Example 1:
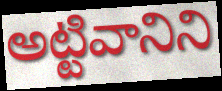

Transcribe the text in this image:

అట్టివానిని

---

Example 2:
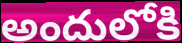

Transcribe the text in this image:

అందులోకి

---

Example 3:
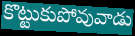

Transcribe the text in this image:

కొట్టుకుపోవువాడు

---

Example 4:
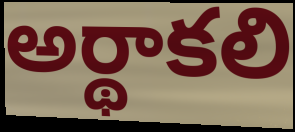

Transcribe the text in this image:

అర్థాకలి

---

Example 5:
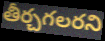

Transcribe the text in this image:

తీర్చగలరని